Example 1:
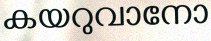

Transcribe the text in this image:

കയറുവാനോ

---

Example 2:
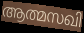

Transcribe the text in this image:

ആത്മസഖി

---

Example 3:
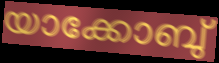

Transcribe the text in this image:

യാക്കോബു്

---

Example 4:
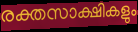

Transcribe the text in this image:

രക്തസാക്ഷികളും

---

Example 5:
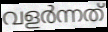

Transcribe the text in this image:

വളർന്നത്